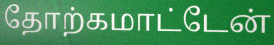
தோற்கமாட்டேன்